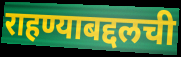
राहण्याबद्दलची